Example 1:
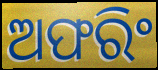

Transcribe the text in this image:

ଅଫରିଂ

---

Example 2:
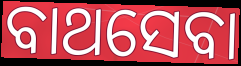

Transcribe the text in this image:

ବାଥସେବା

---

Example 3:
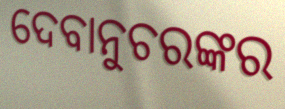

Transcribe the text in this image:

ଦେବାନୁଚରଙ୍କର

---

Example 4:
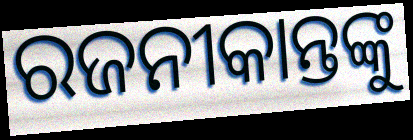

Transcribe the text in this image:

ରଜନୀକାନ୍ତଙ୍କୁ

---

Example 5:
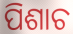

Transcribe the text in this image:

ପିଶାଚ